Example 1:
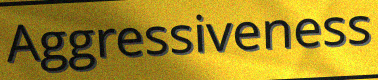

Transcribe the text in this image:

Aggressiveness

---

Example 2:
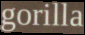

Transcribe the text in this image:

gorilla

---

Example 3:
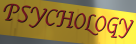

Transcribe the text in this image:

PSYCHOLOGY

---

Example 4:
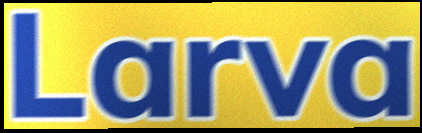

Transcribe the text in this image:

Larva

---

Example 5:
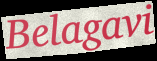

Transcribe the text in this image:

Belagavi